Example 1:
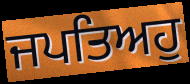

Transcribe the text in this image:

ਜਪਤਿਅਹੁ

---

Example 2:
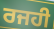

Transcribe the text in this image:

ਰਜਹੀ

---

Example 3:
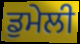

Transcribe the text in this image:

ਡੁਮੇਲੀ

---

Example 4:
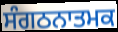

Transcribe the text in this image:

ਸੰਗਠਨਾਤਮਕ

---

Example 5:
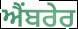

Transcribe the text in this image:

ਐਂਬਰੇਰ